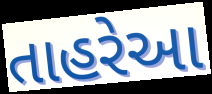
તાહરેઆ